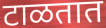
टाळतात